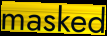
masked